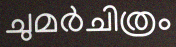
ചുമർചിത്രം